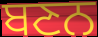
ਬਣਨ